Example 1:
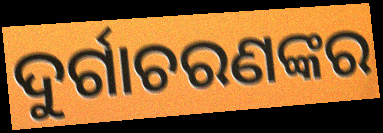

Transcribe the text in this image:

ଦୁର୍ଗାଚରଣଙ୍କର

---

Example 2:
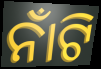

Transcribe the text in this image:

ନାଁଟି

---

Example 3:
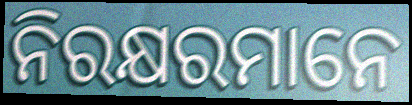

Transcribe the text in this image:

ନିରକ୍ଷରମାନେ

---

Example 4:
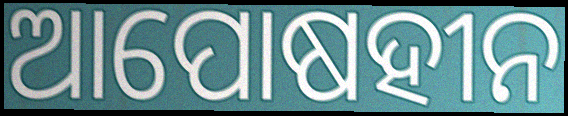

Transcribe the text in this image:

ଆପୋଷହୀନ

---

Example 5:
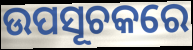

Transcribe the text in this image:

ଉପସୂଚକରେ